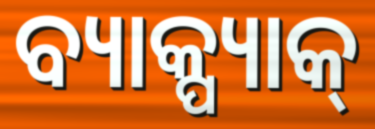
ବ୍ୟାକ୍ପ୍ୟାକ୍